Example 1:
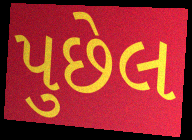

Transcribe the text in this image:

પુછેલ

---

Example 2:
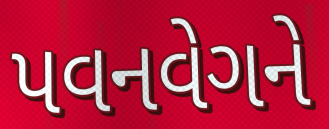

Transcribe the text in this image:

પવનવેગને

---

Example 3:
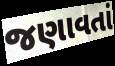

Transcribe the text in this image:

જણાવતાં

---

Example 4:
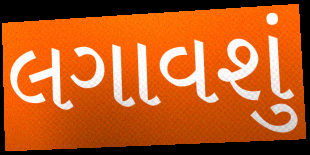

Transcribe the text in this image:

લગાવશું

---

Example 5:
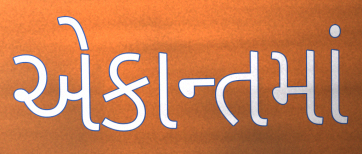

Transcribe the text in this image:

એકાન્તમાં